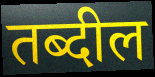
तब्दील